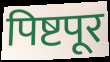
पिष्टपूर